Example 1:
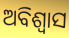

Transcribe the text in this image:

ଅବିଶ୍ବାସ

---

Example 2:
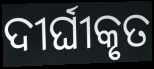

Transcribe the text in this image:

ଦୀର୍ଘୀକୃତ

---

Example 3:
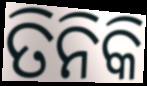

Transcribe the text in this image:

ତିନିକି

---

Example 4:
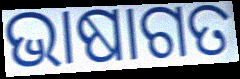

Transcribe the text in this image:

ଭାଷାଗତ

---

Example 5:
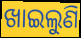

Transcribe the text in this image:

ଖାଇଲୁଣି